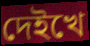
দেইখে